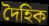
দৈহিক